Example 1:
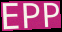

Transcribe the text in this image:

EPP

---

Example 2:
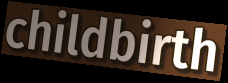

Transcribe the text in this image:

childbirth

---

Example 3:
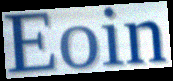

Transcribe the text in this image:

Eoin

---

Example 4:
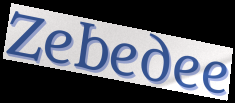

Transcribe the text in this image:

Zebedee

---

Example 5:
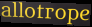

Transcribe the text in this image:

allotrope